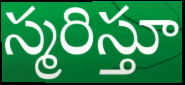
స్మరిస్తూ